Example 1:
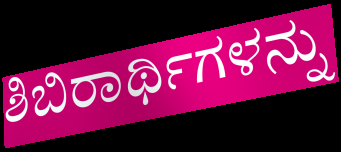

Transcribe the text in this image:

ಶಿಬಿರಾರ್ಥಿಗಳನ್ನು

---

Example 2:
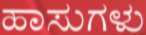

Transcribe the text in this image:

ಹಾಸುಗಳು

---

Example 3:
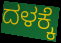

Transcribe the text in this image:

ದಳಕ್ಕೆ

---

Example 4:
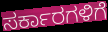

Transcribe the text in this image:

ಸರ್ಕಾರಗಳಿಗೆ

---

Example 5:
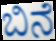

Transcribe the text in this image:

ಬಿನೆ